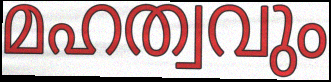
മഹത്വവും